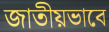
জাতীয়ভাবে